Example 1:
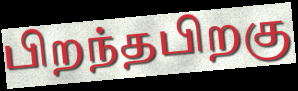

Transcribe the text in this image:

பிறந்தபிறகு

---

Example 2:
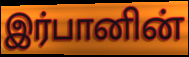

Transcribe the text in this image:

இர்பானின்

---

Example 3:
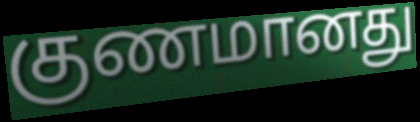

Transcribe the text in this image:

குணமானது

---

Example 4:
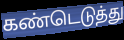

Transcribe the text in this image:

கண்டெடுத்து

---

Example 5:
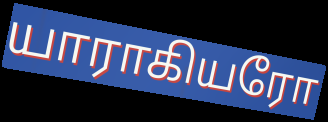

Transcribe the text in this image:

யாராகியரோ